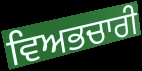
ਵਿਅਭਚਾਰੀ